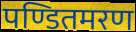
पण्डितमरण